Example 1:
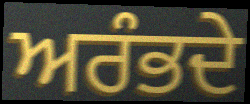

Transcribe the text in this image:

ਅਰੰਭਦੇ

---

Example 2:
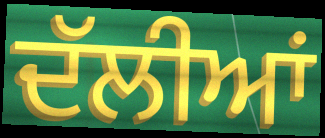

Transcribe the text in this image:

ਦੱਲੀਆਂ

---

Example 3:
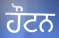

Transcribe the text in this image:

ਹੌਟਨ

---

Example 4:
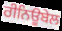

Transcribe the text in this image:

ਰੀਨਿਊਬੇਲ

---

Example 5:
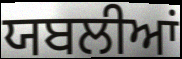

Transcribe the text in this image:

ਯਬਲੀਆਂ